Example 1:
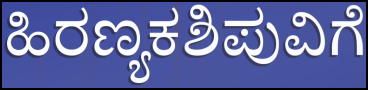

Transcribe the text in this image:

ಹಿರಣ್ಯಕಶಿಪುವಿಗೆ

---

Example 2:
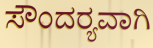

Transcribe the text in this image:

ಸೌಂದರ‍್ಯವಾಗಿ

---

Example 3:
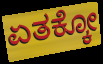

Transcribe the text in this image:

ಏತಕ್ಕೋ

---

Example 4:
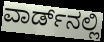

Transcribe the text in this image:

ವಾರ್ಡ್‌ನಲ್ಲಿ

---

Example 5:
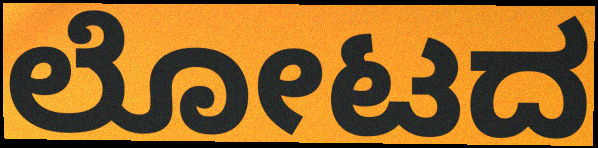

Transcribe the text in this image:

ಲೋಟದ